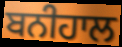
ਬਨੀਹਾਲ